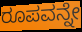
ರೂಪವನ್ನೇ